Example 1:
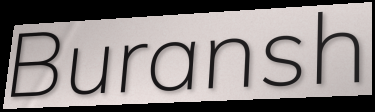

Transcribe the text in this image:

Buransh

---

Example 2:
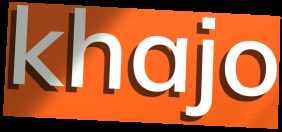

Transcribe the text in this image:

khajo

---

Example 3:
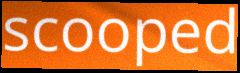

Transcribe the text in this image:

scooped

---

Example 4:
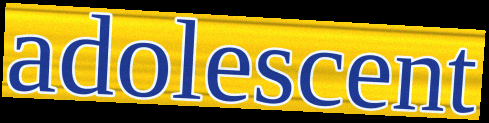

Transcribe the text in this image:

adolescent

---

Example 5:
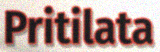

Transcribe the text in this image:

Pritilata